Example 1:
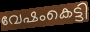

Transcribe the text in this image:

വേഷംകെട്ടി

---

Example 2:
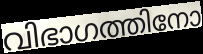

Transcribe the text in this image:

വിഭാഗത്തിനോ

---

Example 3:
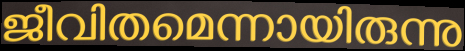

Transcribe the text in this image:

ജീവിതമെന്നായിരുന്നു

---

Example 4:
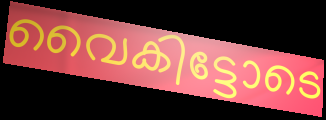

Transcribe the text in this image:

വൈകിട്ടോടെ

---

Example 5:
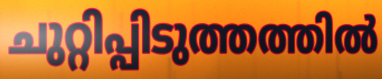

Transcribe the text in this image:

ചുറ്റിപ്പിടുത്തത്തിൽ